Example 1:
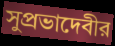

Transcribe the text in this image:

সুপ্রভাদেবীর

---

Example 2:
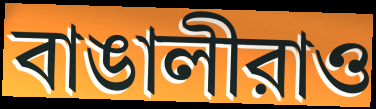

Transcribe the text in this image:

বাঙালীরাও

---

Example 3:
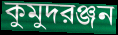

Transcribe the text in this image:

কুমুদরঞ্জন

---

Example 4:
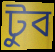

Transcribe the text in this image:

টুব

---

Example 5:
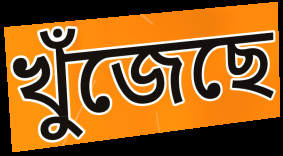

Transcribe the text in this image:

খুঁজেছে